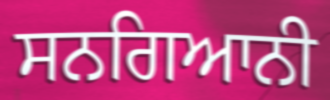
ਸਨਗਿਆਨੀ